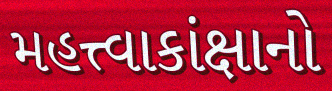
મહત્ત્વાકાંક્ષાનો